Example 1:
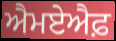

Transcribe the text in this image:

ਐਮਏਐਫ਼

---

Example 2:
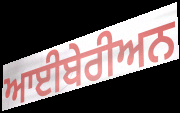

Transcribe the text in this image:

ਆਈਬੇਰੀਅਨ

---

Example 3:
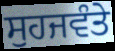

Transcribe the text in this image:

ਸੁਹਜਵੰਤੇ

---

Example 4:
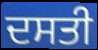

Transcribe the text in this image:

ਦਸਤੀ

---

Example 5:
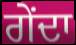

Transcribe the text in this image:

ਗੇਂਦਾ